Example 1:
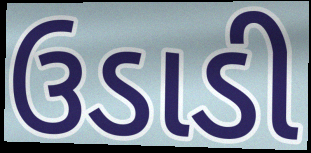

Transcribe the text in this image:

ઉડાડી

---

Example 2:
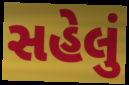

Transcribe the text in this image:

સહેલું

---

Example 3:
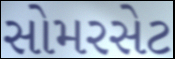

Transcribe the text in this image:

સોમરસેટ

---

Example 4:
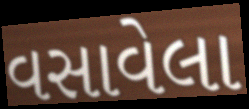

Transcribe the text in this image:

વસાવેલા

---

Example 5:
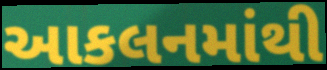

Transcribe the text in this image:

આકલનમાંથી